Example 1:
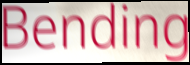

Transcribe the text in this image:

Bending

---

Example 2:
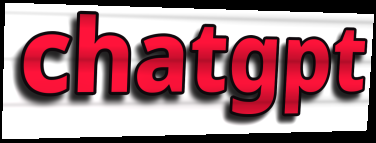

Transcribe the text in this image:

chatgpt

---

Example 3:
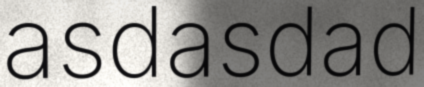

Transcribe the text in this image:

asdasdad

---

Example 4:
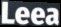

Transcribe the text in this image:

Leea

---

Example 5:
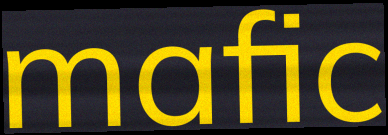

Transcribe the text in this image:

mafic